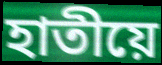
হাতীয়ে